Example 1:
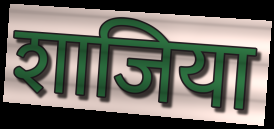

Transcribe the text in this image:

शाजिया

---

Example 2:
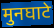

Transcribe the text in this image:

मुनघाटे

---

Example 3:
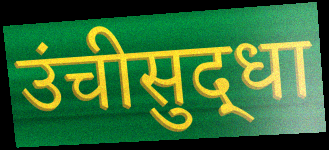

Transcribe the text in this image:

उंचीसुद्धा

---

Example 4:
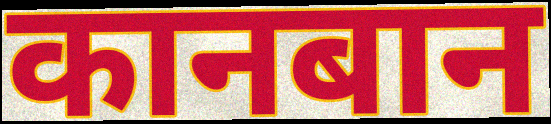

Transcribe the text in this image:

कानबान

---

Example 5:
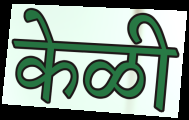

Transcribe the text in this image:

केळी